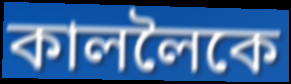
কাললৈকে